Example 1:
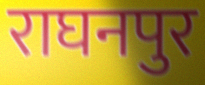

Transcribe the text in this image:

राघनपुर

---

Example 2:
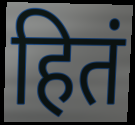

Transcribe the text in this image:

हितं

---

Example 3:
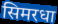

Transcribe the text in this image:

सिमरधा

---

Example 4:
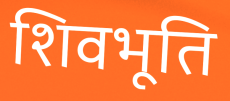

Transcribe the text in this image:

शिवभूति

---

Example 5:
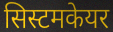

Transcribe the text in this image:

सिस्टमकेयर